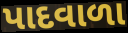
પાદવાળા